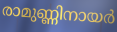
രാമുണ്ണിനായർ